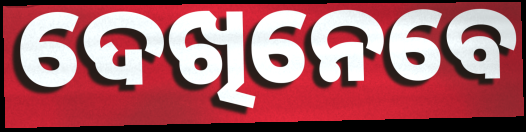
ଦେଖିନେବେ